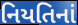
નિયતિનાં